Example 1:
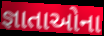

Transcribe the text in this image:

જ્ઞાતાઓના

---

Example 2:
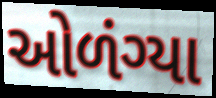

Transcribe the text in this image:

ઓળંગ્યા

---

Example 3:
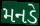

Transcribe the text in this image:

મનડે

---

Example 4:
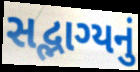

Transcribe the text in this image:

સદ્ભાગ્યનું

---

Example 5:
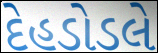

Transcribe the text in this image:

દેહડોડલે